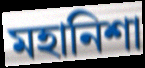
মহানিশা